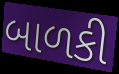
બાળકી